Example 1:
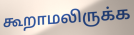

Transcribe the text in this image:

கூறாமலிருக்க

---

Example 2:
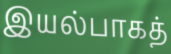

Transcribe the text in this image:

இயல்பாகத்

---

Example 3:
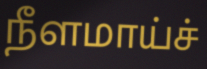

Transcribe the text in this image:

நீளமாய்ச்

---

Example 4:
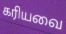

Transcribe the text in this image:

கரியவை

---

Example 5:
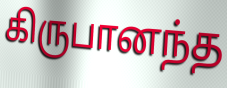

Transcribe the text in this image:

கிருபானந்த